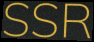
SSR